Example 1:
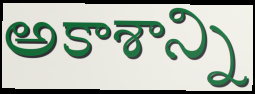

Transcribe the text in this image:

అకాశాన్ని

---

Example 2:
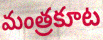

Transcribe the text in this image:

మంత్రకూట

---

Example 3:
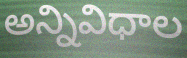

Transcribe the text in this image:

అన్నివిధాల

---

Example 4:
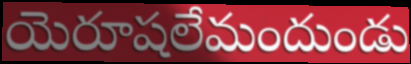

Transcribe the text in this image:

యెరూషలేమందుండు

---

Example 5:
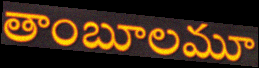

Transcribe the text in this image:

తాంబూలమూ